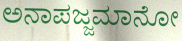
ಅನಾಪಜ್ಜಮಾನೋ